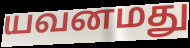
யவனமது